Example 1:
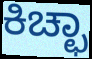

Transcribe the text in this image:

ಕಿಚ್ಛಾ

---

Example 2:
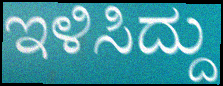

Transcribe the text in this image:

ಇಳಿಸಿದ್ದು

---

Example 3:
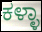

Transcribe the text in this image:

ಕಳ್ಳಾ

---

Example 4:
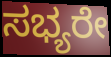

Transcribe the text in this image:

ಸಭ್ಯರೇ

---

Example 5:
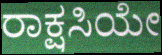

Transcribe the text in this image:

ರಾಕ್ಷಸಿಯೇ